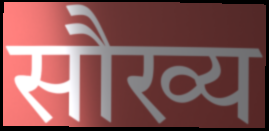
सौख्य